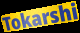
Tokarshi